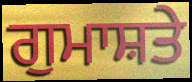
ਗੁਮਾਸ਼ਤੇ